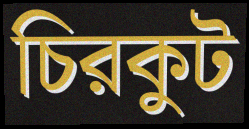
চিরকুট